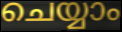
ചെയ്യാം